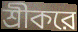
শ্রীকরে